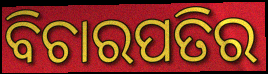
ବିଚାରପତିର